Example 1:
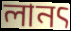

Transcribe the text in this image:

লানৎ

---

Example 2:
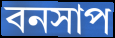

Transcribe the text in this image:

বনসাপ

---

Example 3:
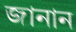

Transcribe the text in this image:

জানান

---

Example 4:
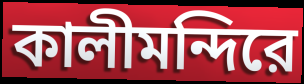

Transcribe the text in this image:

কালীমন্দিরে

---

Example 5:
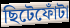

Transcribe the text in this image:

ছিটেফোঁটা